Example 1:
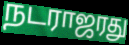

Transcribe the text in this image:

நடராஜரது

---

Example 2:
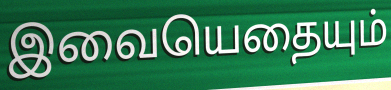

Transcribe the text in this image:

இவையெதையும்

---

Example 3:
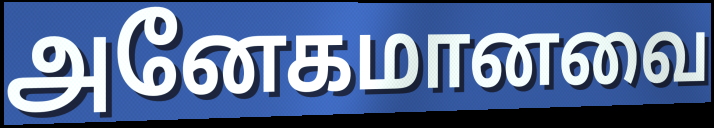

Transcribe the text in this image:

அனேகமானவை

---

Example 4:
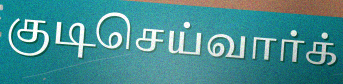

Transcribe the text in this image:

குடிசெய்வார்க்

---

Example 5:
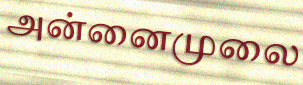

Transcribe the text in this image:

அன்னைமுலை